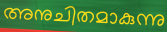
അനുചിതമാകുന്നു